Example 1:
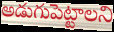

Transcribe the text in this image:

అడుగుపెట్టాలని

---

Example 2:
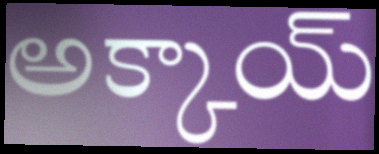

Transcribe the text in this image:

అక్కాయ్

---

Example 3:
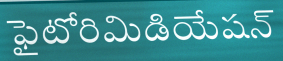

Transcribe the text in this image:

ఫైటోరిమిడియేషన్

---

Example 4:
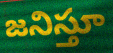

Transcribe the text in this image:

జనిస్తూ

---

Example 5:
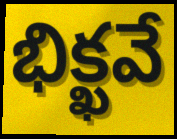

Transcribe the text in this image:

భిక్ఖవే